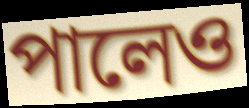
পালেও